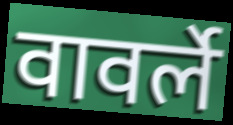
वावर्ले